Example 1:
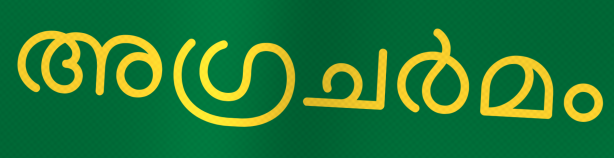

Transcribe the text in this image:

അഗ്രചർമം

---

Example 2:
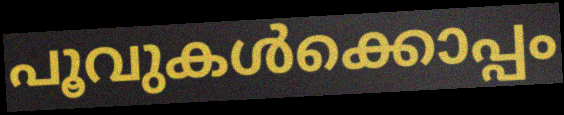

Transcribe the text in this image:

പൂവുകൾക്കൊപ്പം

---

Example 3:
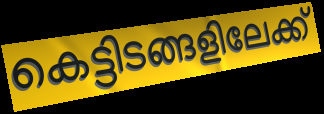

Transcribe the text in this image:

കെട്ടിടങ്ങളിലേക്ക്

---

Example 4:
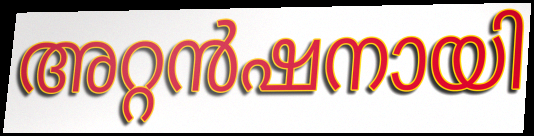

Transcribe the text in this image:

അറ്റൻഷനായി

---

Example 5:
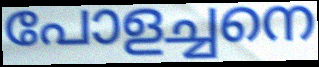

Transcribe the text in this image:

പോളച്ചനെ